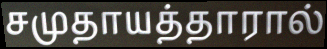
சமுதாயத்தாரால்